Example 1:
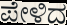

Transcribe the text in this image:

ಪೇಳಿದ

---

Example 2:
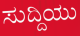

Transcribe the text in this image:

ಸುದ್ದಿಯು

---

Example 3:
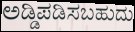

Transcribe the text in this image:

ಅಡ್ಡಿಪಡಿಸಬಹುದು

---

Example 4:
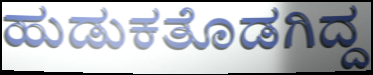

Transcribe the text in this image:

ಹುಡುಕತೊಡಗಿದ್ದ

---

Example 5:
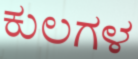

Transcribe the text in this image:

ಕುಲಗಳ